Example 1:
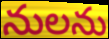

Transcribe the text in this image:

నులను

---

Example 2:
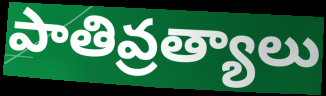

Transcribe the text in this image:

పాతివ్రత్యాలు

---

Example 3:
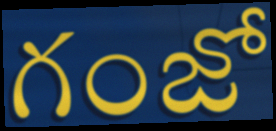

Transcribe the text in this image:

గంజో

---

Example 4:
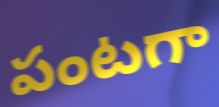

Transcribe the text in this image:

పంటగా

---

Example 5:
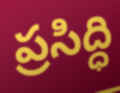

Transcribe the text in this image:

ప్రసిద్ధి